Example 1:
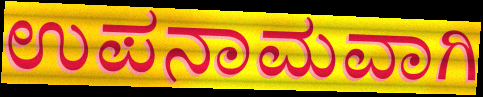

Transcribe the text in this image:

ಉಪನಾಮವಾಗಿ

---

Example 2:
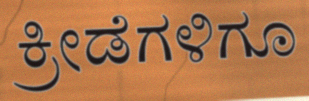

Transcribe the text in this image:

ಕ್ರೀಡೆಗಳಿಗೂ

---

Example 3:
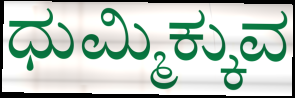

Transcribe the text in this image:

ಧುಮ್ಮಿಕ್ಕುವ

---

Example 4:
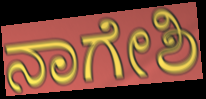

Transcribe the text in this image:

ನಾಗೇಶಿ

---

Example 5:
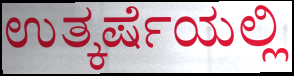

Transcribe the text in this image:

ಉತ್ಕರ್ಷೆಯಲ್ಲಿ